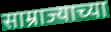
साम्राज्याच्या